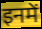
इनमें